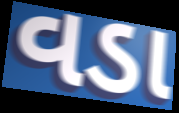
વડા